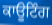
ਕਾਊਟਿੰਗ